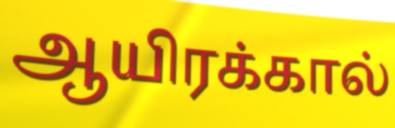
ஆயிரக்கால்